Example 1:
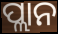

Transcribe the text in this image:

ପ୍ଲାନ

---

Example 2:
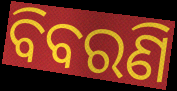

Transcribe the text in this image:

ବିବରଣି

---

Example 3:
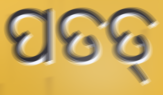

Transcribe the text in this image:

ପତତ୍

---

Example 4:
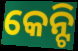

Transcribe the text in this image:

କେନ୍ଟି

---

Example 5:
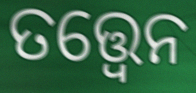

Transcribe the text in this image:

ତତ୍ତ୍ଵେନ